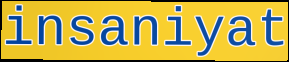
insaniyat